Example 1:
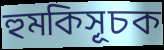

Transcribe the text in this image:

হুমকিসূচক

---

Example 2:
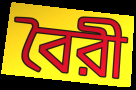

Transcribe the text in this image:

বৈরী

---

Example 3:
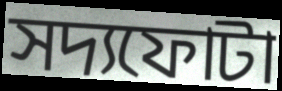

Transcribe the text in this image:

সদ্যফোটা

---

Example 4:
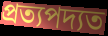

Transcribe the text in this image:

প্রত্যপদ্যত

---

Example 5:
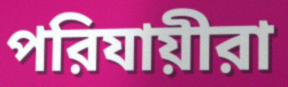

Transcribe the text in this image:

পরিযায়ীরা